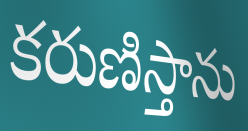
కరుణిస్తాను